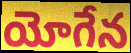
యోగేన